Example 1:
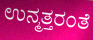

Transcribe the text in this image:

ಉನ್ಮತ್ತರಂತೆ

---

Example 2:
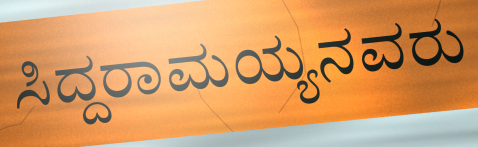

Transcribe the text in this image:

ಸಿದ್ದರಾಮಯ್ಯನವರು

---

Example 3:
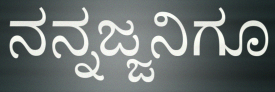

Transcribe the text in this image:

ನನ್ನಜ್ಜನಿಗೂ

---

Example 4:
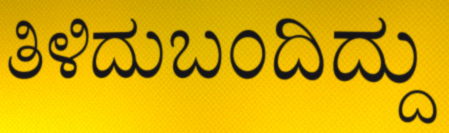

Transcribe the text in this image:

ತಿಳಿದುಬಂದಿದ್ದು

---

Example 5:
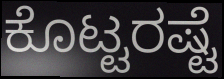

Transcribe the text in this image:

ಕೊಟ್ಟರಷ್ಟೆ